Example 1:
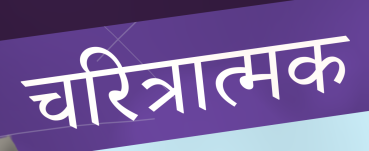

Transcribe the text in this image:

चरित्रात्मक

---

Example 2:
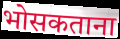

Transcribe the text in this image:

भोसकताना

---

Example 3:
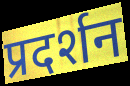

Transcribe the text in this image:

प्रदर्शन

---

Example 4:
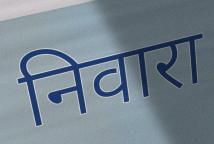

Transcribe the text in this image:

निवारा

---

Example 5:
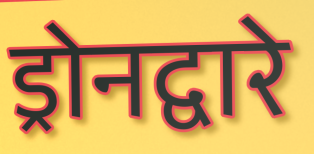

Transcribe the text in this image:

ड्रोनद्वारे